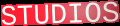
STUDIOS